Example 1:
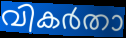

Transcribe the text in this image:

വികർതാ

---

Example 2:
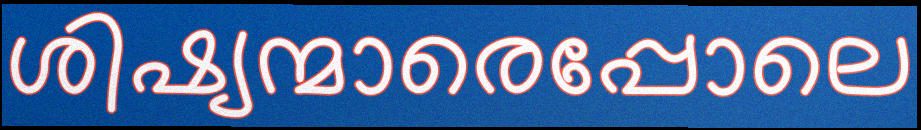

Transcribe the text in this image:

ശിഷ്യന്മാരെപ്പോലെ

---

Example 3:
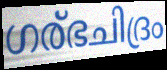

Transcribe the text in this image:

ഗര്ഭചിദ്രം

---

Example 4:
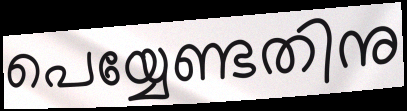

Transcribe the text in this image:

പെയ്യേണ്ടതിനു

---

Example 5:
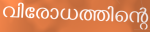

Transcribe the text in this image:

വിരോധത്തിന്റെ